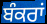
ਬੰਕਰਾਂ